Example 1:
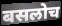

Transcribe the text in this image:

बसलोच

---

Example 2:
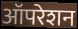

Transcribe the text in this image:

ऑपरेशन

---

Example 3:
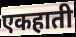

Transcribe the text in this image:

एकहाती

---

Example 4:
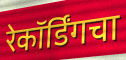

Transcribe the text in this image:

रेकॉर्डिंगचा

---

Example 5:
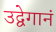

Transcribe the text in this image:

उद्वेगानं